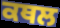
ਕਥਲ